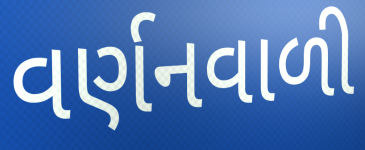
વર્ણનવાળી